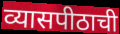
व्यासपीठाची